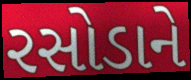
રસોડાને